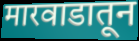
मारवाडातून